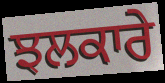
ਝਲਕਾਰੇ